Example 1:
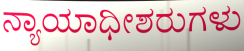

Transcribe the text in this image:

ನ್ಯಾಯಾಧೀಶರುಗಳು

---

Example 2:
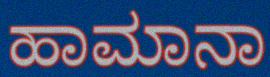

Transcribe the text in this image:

ಹಾಮಾನಾ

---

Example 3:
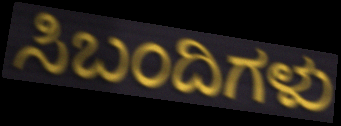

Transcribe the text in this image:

ಸಿಬಂದಿಗಳು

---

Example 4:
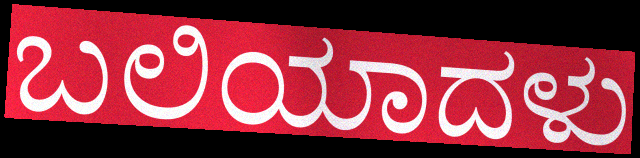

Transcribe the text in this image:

ಬಲಿಯಾದಳು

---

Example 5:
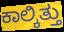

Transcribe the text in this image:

ಕಾಲ್ಕಿತ್ತು